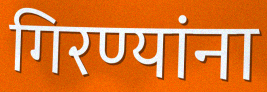
गिरण्यांना